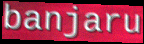
banjaru